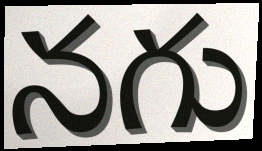
నగు